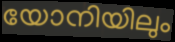
യോനിയിലും